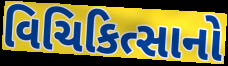
વિચિકિત્સાનો